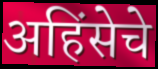
अहिंसेचे